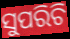
ସୁପରିଚି